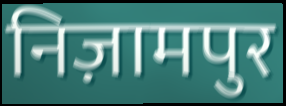
निज़ामपुर